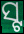
ସ୍ଟ